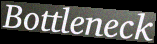
Bottleneck